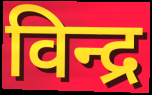
विन्द्र